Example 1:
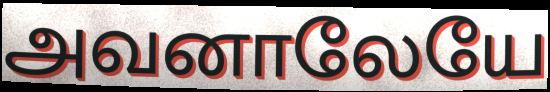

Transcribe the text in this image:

அவனாலேயே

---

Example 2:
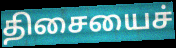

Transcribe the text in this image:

திசையைச்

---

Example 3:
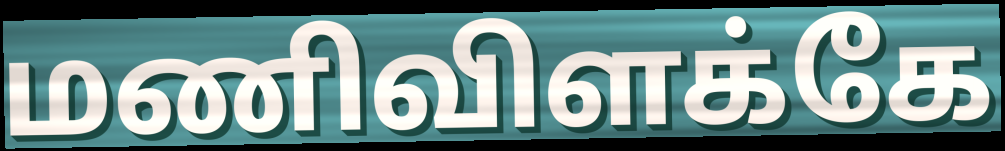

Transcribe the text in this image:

மணிவிளக்கே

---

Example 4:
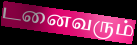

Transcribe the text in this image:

டனைவரும்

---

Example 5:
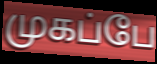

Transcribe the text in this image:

முகப்பே